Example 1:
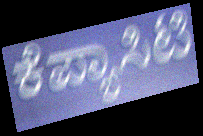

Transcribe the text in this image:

ಕೆಪ್ಯಾಸಿಟಿ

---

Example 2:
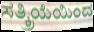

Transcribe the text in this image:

ಸತ್ಕ್ರಿಯೆಯಿಂದ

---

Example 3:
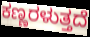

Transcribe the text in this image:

ಕಣ್ಣರಳುತ್ತದೆ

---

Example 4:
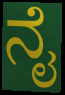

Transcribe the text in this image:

ನೈ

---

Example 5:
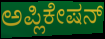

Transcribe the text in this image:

ಅಪ್ಲಿಕೇಷನ್